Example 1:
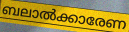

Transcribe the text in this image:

ബലാൽക്കാരേണ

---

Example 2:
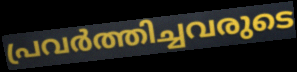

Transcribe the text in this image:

പ്രവർത്തിച്ചവരുടെ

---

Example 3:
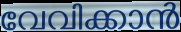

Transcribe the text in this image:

വേവിക്കാൻ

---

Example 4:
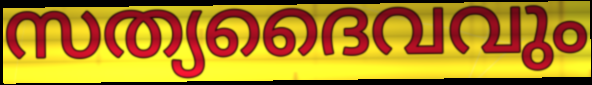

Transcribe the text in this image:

സത്യദൈവവും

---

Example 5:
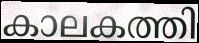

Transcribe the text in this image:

കാലകത്തി